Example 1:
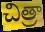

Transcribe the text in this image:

చిత్రా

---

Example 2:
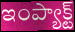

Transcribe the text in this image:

ఇంప్యాక్ట్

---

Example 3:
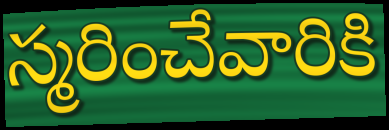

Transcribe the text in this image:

స్మరించేవారికి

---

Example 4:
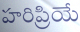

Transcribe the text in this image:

హరిప్రియే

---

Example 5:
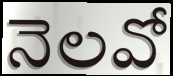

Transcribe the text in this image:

నెలవో